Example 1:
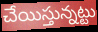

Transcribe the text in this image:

చేయిస్తున్నట్టు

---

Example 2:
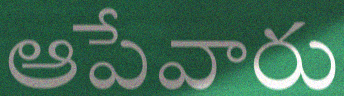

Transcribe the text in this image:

ఆపేవారు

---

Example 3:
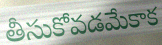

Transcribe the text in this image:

తీసుకోవడమేకాక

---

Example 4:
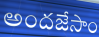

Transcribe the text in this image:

అందజేసాం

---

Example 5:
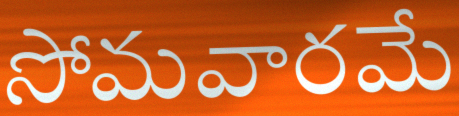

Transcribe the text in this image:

సోమవారమే